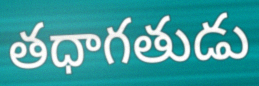
తధాగతుడు